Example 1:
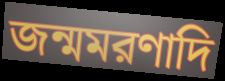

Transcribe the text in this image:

জন্মমরণাদি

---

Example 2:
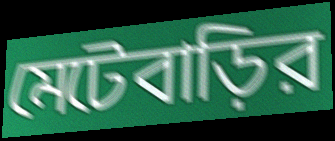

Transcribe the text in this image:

মেটেবাড়ির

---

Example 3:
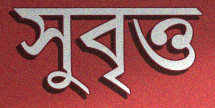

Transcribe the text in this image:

সুবৃত্ত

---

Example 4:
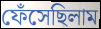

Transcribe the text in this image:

ফেঁসেছিলাম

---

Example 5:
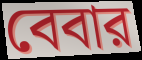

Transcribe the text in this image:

বেবার